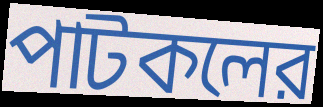
পাটকলের